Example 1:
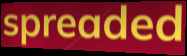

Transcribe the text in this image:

spreaded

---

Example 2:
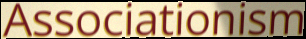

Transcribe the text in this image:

Associationism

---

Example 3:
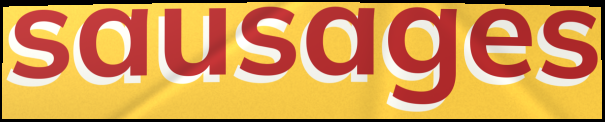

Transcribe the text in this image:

sausages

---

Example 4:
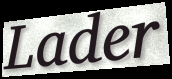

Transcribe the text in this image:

Lader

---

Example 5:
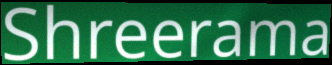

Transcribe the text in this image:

Shreerama